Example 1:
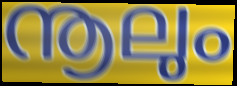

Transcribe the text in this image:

നൂലും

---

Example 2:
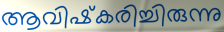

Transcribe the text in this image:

ആവിഷ്‌കരിച്ചിരുന്നു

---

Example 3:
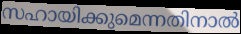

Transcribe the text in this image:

സഹായിക്കുമെന്നതിനാൽ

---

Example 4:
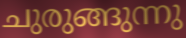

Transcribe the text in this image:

ചുരുങ്ങുന്നു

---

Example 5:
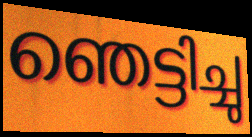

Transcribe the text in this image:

ഞെട്ടിച്ചു